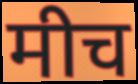
मीच